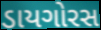
ડાયગોરસ